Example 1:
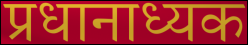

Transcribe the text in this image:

प्रधानाध्यक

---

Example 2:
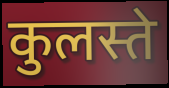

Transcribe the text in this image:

कुलस्ते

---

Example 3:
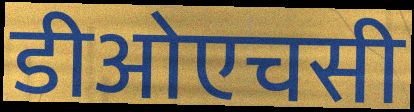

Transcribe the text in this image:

डीओएचसी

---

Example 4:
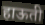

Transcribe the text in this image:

हाऊती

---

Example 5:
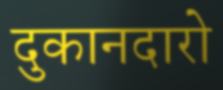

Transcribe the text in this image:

दुकानदारो